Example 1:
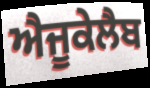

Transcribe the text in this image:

ਐਜੂਕੇਲੈਬ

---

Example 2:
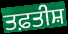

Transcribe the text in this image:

ਤਫ਼ਤੀਸ਼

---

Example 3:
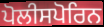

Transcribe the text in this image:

ਪੋਲੀਸਪੋਰਿਨ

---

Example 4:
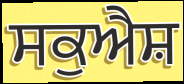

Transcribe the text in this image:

ਸਕੁਐਸ਼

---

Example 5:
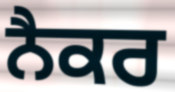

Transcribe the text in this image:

ਨੈਕਰ